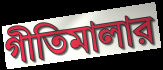
গীতিমালার